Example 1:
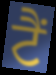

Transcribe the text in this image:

ਟੈੰ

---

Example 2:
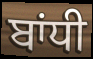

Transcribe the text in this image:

ਬਾਂਧੀ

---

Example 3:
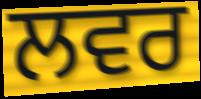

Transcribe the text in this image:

ਲਵਰ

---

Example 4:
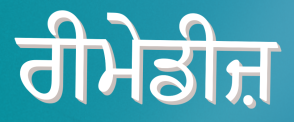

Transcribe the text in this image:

ਰੀਮੇਡੀਜ਼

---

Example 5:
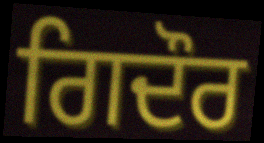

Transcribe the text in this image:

ਗਿਦੌਰ